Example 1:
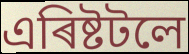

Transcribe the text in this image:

এৰিষ্টটলে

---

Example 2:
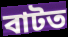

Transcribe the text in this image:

বাটত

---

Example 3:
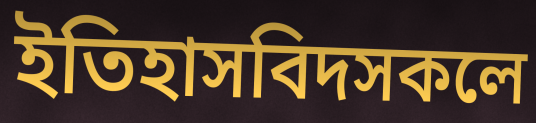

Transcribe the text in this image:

ইতিহাসবিদসকলে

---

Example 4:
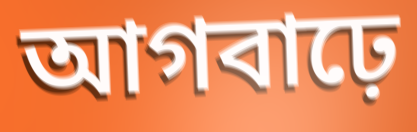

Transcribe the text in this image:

আগবাঢ়ে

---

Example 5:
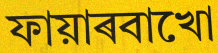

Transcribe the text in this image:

ফায়াৰবাখো